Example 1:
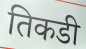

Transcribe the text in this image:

तिकडी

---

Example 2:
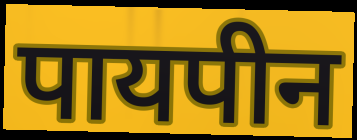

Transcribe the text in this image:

पायपीन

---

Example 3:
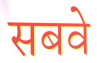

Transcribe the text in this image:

सबवे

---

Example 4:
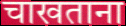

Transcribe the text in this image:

चाखताना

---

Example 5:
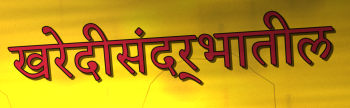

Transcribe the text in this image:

खरेदीसंदर्भातील